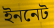
ইননেট